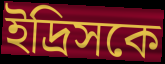
ইদ্রিসকে